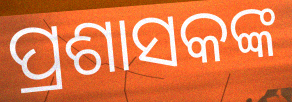
ପ୍ରଶାସକଙ୍କ